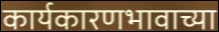
कार्यकारणभावाच्या